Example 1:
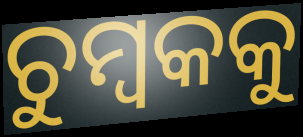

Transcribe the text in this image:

ଚୁମ୍ବକକୁ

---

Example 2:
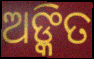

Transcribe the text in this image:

ଅଙ୍କିତ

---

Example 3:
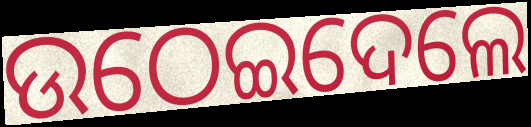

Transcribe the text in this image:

ଉଠେଇଦେଲେ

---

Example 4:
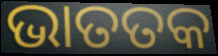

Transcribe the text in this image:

ଭାତତକ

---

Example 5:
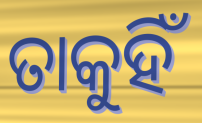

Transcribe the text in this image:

ତାକୁହିଁ